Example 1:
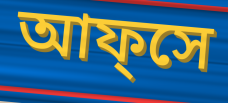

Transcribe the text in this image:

আফ্সে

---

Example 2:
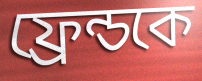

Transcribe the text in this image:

ফ্রেন্ডকে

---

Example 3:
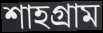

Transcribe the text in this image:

শাহগ্রাম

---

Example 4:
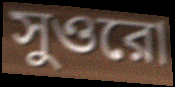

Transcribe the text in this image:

সুওরো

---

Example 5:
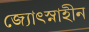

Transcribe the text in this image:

জ্যোৎস্নাহীন